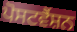
ਪੋਸਟਵੈਂਸ਼ਨ